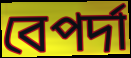
বেপর্দা